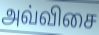
அவ்விசை